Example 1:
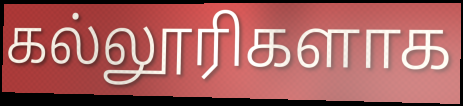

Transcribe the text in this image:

கல்லூரிகளாக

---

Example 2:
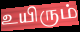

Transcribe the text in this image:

உயிரும்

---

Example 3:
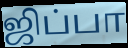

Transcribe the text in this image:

ஜிப்பா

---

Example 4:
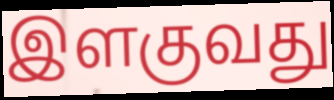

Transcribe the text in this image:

இளகுவது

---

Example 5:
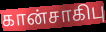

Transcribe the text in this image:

கான்சாகிபு